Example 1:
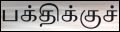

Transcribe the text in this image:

பக்திக்குச்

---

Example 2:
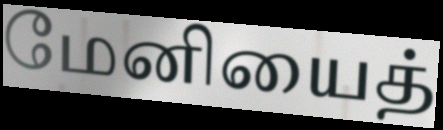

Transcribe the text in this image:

மேனியைத்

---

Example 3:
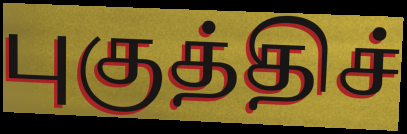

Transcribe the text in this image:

புகுத்திச்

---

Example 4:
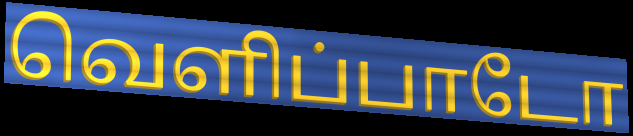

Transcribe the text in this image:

வெளிப்பாடோ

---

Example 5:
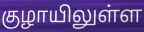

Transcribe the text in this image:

குழாயிலுள்ள